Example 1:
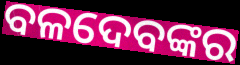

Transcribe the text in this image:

ବଳଦେବଙ୍କର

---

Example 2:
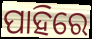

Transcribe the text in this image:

ପାହିରେ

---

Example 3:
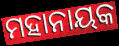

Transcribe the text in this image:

ମହାନାୟକ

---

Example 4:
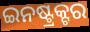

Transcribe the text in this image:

ଇନଷ୍ଟ୍ରକ୍ଟର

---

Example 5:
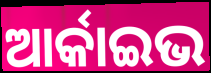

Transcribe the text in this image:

ଆର୍କାଇଭ